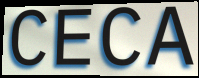
CECA